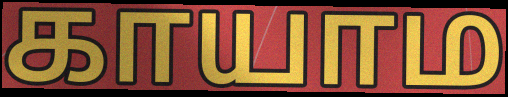
காயாம